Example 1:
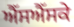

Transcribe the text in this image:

ਐੱਸਐੱਸਕੇ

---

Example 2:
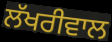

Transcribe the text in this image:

ਲੱਖਰੀਵਾਲ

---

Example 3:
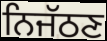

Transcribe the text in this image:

ਨਿਜੱਠਣ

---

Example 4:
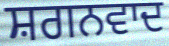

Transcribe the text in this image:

ਸ਼ਗਨਵਾਦ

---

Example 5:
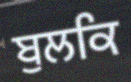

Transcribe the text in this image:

ਬੁਲਕਿ